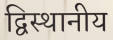
द्विस्थानीय